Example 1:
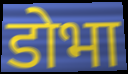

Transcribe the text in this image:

डोभा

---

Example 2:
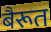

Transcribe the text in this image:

बैरूत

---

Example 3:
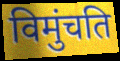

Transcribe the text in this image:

विमुंचति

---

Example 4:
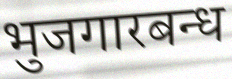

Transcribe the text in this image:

भुजगारबन्ध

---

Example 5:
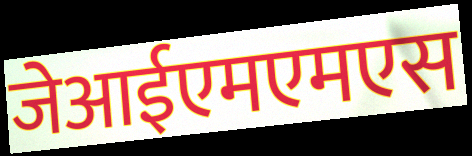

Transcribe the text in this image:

जेआईएमएमएस